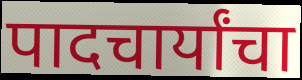
पादचार्यांचा